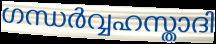
ഗന്ധർവ്വഹസ്താദി